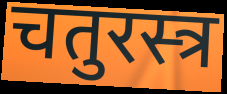
चतुरस्त्र